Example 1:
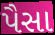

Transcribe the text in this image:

પૈસા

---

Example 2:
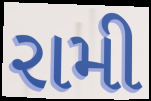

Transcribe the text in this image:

રામી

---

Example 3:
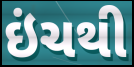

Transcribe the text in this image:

ઇંચથી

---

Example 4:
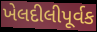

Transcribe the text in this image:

ખેલદીલીપૂર્વક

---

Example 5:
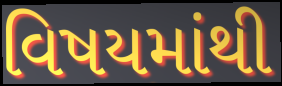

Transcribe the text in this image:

વિષયમાંથી